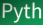
Pyth